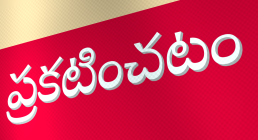
ప్రకటించటం